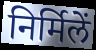
निर्मिलें